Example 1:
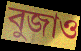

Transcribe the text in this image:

বুজাও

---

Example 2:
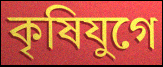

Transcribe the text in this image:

কৃষিযুগে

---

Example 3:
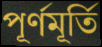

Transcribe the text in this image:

পূর্ণমূর্তি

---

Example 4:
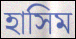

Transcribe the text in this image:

হাসিম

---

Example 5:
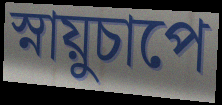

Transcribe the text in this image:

স্নায়ুচাপে